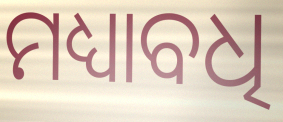
ମଧ୍ୟାବଧି